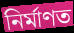
নিৰ্মাণত